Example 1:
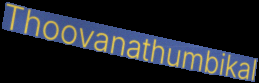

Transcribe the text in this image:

Thoovanathumbikal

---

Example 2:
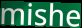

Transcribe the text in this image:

mishe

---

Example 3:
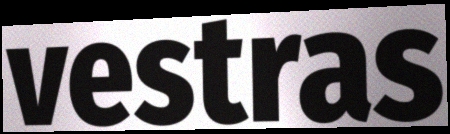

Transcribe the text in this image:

vestras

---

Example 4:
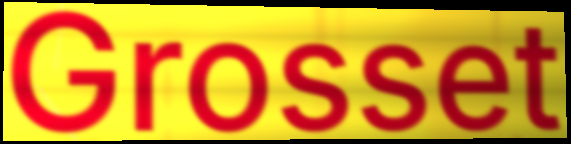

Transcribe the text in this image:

Grosset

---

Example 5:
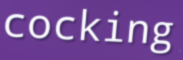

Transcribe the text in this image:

cocking